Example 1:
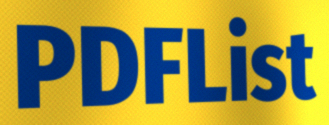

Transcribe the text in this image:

PDFList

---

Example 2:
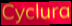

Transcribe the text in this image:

Cyclura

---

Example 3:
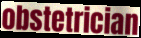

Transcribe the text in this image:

obstetrician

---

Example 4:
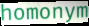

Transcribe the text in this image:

homonym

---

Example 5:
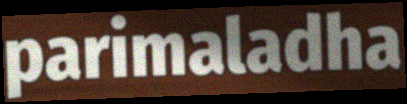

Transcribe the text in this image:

parimaladha